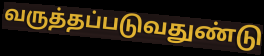
வருத்தப்படுவதுண்டு